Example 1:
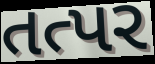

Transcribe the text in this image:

તત્પર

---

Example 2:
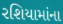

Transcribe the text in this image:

રશિયામાંના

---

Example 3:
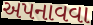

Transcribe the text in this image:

અપનાવવા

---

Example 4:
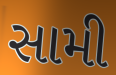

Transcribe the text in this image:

સામી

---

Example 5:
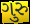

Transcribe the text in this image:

ગુરુ